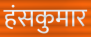
हंसकुमार